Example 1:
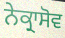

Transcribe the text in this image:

ਨੇਕ੍ਰਾਸੋਵ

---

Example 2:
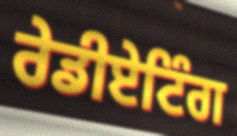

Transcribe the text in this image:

ਰੇਡੀਏਟਿੰਗ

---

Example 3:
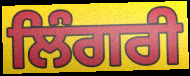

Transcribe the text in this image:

ਲਿੰਗਰੀ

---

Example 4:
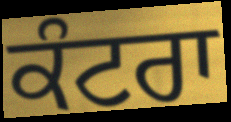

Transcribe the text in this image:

ਕੰਟਰਾ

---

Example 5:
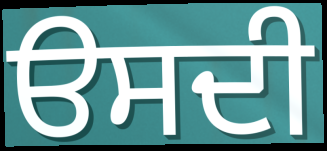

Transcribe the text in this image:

ੳਸਦੀ